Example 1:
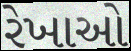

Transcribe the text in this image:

રેખાઓ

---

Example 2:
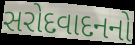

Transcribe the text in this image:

સરોદવાદનનો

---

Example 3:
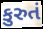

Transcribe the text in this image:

કુરુતં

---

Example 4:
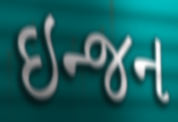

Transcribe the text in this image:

ઇન્જન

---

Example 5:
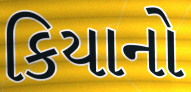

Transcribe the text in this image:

કિયાનો